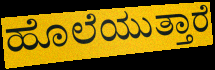
ಹೊಲೆಯುತ್ತಾರೆ